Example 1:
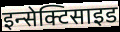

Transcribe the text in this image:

इन्सेक्टिसाइड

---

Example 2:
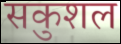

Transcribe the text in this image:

सकुशल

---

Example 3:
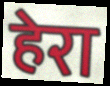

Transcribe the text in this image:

हेरा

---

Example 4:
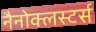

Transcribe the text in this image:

नैनोक्लस्टर्स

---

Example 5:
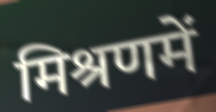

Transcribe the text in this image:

मिश्रणमें